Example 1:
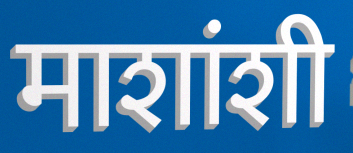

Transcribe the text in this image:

माशांशी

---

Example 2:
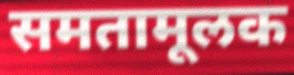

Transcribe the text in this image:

समतामूलक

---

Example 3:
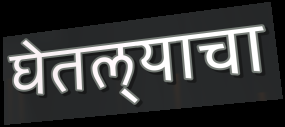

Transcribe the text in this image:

घेतल्याचा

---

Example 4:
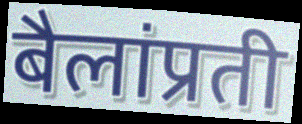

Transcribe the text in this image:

बैलांप्रती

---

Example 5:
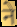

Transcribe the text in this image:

ने